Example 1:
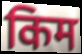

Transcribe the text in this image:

किम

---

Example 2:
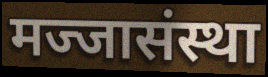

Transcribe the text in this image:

मज्जासंस्था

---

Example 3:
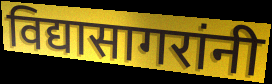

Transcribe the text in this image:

विद्यासागरांनी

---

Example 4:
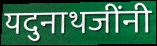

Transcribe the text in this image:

यदुनाथजींनी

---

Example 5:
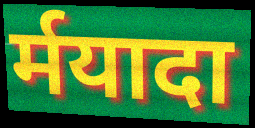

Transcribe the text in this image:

र्मयादा